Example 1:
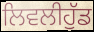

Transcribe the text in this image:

ਲਿਵਲੀਹੁੱਡ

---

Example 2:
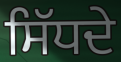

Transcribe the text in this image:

ਸਿੱਧਦੇ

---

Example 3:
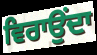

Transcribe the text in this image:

ਵਿਰਾਉਂਦਾ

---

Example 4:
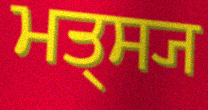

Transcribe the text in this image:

ਮਤ੍ਸ੍ਯ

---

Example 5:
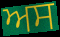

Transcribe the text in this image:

ਅਸ